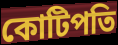
কোটিপতি